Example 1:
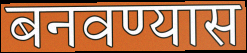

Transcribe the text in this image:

बनवण्यास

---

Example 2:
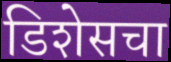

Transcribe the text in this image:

डिशेसचा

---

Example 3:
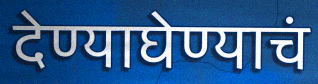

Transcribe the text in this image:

देण्याघेण्याचं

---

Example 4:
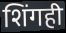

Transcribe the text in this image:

शिंगही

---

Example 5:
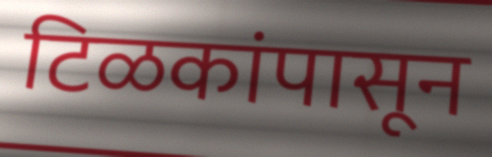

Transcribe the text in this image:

टिळकांपासून